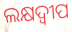
ଲକ୍ଷଦ୍ୱୀପ